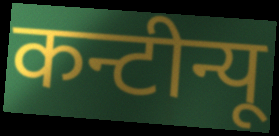
कन्टीन्यू